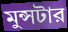
মুন্সটার